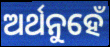
ଅର୍ଥନୁହେଁ